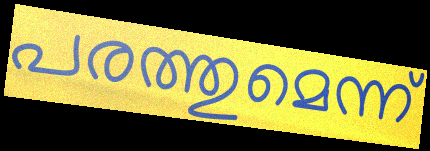
പരത്തുമെന്ന്